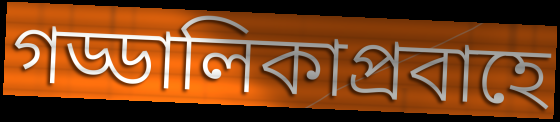
গড্ডালিকাপ্রবাহে